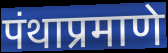
पंथाप्रमाणे